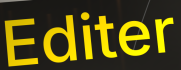
Editer